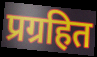
प्रग्रहित